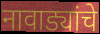
नावाड्यांचे